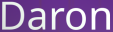
Daron